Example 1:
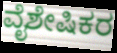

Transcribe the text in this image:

ವೈಶೇಷಿಕರ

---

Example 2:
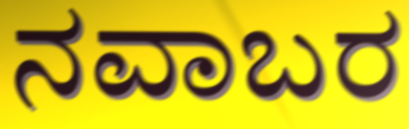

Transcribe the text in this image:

ನವಾಬರ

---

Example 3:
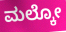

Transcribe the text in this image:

ಮಲ್ಕೋ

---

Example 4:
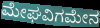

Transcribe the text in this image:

ಮೇಘವಿಗಮೇನ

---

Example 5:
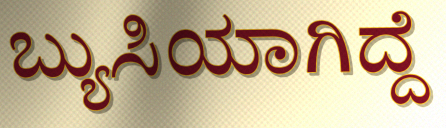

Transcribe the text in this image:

ಬ್ಯುಸಿಯಾಗಿದ್ದೆ